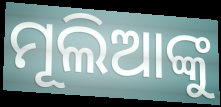
ମୂଲିଆଙ୍କୁ